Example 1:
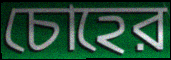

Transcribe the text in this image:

চোহের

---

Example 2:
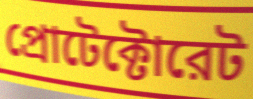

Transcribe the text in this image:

প্রোটেক্টোরেট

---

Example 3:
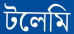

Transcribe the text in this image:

টলেমি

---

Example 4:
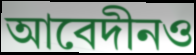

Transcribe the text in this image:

আবেদীনও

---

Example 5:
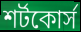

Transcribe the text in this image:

শর্টকোর্স